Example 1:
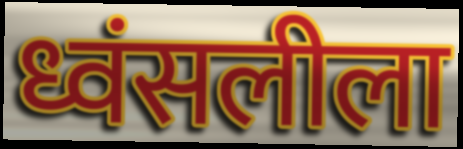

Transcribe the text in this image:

ध्वंसलीला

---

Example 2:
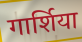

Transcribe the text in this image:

गार्शिया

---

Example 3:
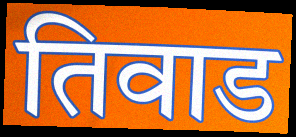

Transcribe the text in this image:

तिवाड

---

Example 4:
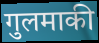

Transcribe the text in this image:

गुलमाकी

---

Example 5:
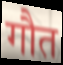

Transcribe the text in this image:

गौत